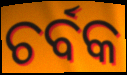
ଚର୍ବକ